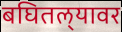
बघितल्यावर